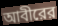
আবীরের